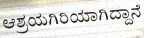
ಆಶ್ರಯಗಿರಿಯಾಗಿದ್ದಾನೆ